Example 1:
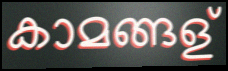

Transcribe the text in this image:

കാമങ്ങള്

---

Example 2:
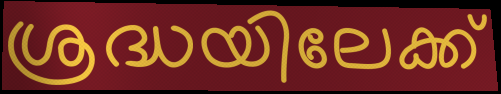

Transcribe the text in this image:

ശ്രദ്ധയിലേക്ക്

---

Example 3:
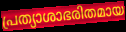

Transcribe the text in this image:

പ്രത്യാശാഭരിതമായ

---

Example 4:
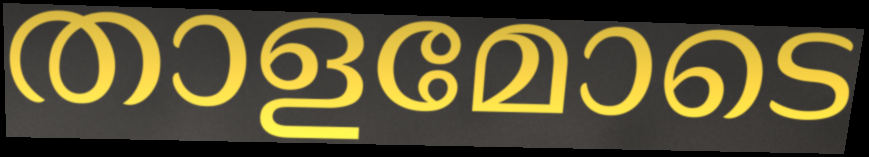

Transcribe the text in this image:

താളമോടെ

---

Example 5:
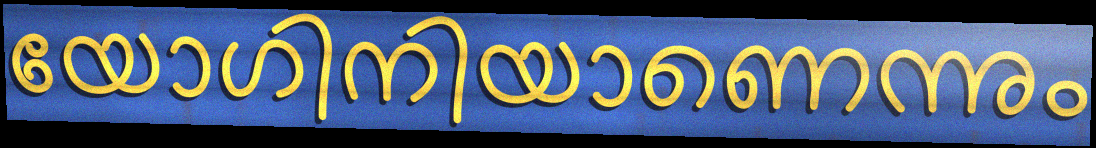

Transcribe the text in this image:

യോഗിനിയാണെന്നും